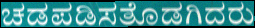
ಚಡಪಡಿಸತೊಡಗಿದರು